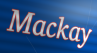
Mackay